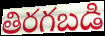
తిరగబడి